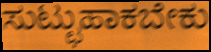
ಸುಟ್ಟುಹಾಕಬೇಕು